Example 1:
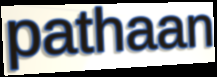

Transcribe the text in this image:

pathaan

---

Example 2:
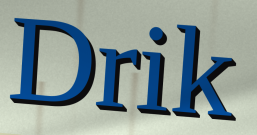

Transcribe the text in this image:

Drik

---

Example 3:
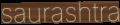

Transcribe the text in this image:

saurashtra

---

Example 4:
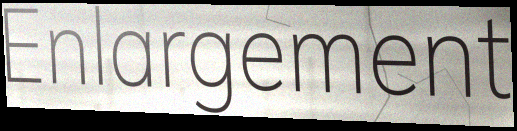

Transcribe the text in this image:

Enlargement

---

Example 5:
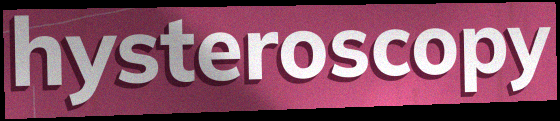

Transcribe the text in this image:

hysteroscopy